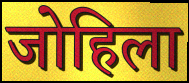
जोहिला